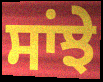
ਸਾਂਝੇ